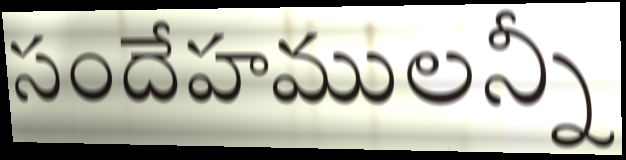
సందేహములన్నీ